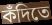
কঁদিতে